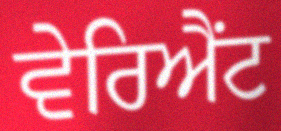
ਵੇਰਿਐਂਟ